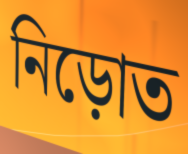
নিড়োত